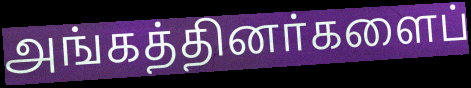
அங்கத்தினர்களைப்